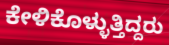
ಕೇಳಿಕೊಳ್ಳುತ್ತಿದ್ದರು